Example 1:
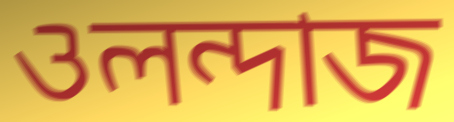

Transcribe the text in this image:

ওলন্দাজ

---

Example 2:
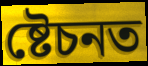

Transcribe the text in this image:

ষ্টেচনত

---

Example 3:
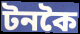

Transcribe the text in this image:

টনকৈ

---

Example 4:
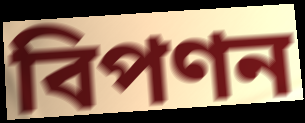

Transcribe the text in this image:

বিপণন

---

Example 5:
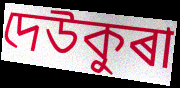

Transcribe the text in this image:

দেউকুৰা